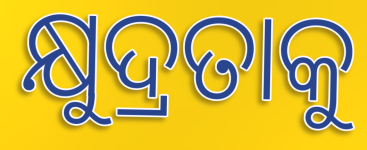
କ୍ଷୁଦ୍ରତାକୁ